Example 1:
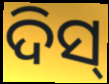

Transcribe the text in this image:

ଦିସ୍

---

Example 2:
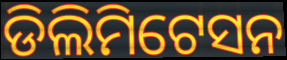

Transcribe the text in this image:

ଡିଲିମିଟେସନ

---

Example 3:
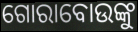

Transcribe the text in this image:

ଗୋରାବୋଉଙ୍କୁ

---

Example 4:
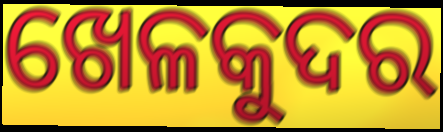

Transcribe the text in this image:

ଖେଳକୁଦର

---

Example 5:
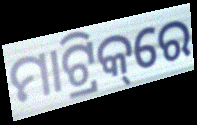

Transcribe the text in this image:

ମାଟ୍ରିକ୍‌ରେ